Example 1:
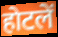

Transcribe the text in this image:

होटलें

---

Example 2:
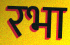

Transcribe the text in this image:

रभा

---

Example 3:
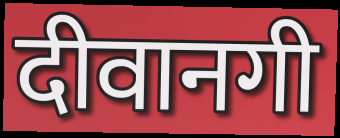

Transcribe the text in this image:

दीवानगी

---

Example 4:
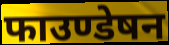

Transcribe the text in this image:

फाउण्डेषन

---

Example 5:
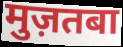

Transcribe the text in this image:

मुज़तबा